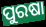
ପୁରଷା